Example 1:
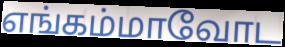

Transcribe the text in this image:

எங்கம்மாவோட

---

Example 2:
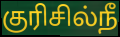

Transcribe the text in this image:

குரிசில்நீ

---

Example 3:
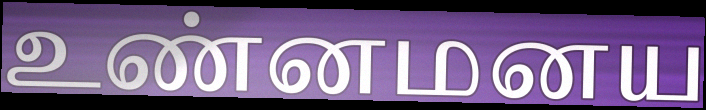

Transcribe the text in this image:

உண்னமனய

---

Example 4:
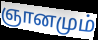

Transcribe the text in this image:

ஞானமும்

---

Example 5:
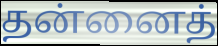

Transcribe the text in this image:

தன்னைத்